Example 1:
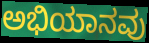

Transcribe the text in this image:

ಅಭಿಯಾನವು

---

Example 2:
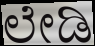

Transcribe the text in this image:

ಲೇಡಿ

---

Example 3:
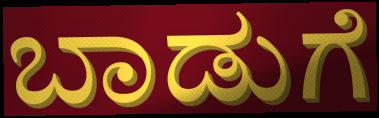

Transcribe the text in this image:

ಬಾಡುಗೆ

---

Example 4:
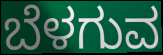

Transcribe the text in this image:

ಬೆಳಗುವ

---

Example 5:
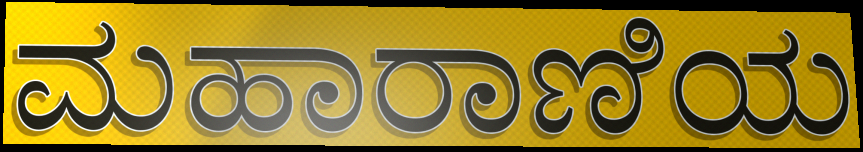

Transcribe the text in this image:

ಮಹಾರಾಣಿಯ